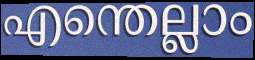
എന്തെല്ലാം